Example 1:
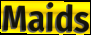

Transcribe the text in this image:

Maids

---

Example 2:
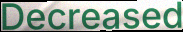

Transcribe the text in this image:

Decreased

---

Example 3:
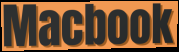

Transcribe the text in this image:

Macbook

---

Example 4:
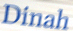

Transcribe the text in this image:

Dinah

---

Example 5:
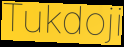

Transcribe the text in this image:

Tukdoji